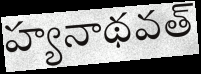
హ్యనాథవత్